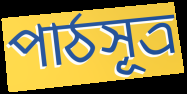
পাঠসূত্র